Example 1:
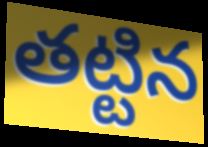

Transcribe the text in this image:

తట్టిన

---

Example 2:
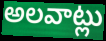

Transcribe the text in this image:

అలవాట్లు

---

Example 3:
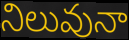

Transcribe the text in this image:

నిలువునా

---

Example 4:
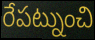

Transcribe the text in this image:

రేపట్నుంచి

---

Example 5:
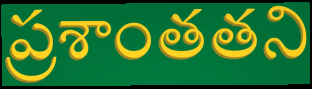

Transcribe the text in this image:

ప్రశాంతతని